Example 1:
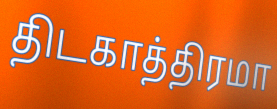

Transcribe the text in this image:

திடகாத்திரமா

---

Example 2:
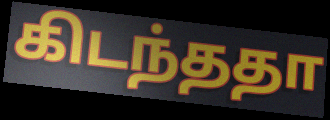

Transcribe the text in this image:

கிடந்ததா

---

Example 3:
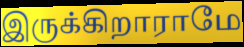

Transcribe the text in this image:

இருக்கிறாராமே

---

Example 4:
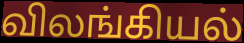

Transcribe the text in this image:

விலங்கியல்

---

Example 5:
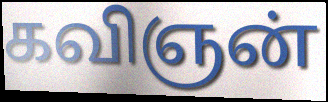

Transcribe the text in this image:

கவிஞன்